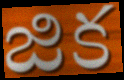
జిక